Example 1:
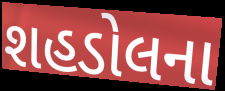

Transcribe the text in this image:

શહડોલના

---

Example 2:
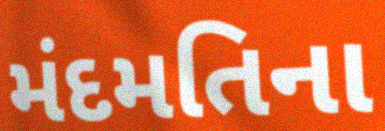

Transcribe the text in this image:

મંદમતિના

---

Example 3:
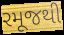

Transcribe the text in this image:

રમૂજથી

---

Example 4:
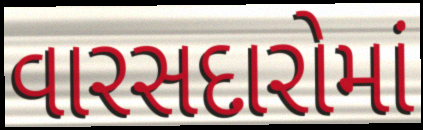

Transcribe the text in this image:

વારસદારોમાં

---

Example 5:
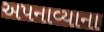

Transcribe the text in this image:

અપનાવ્યાના